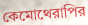
কেমোথেরাপির